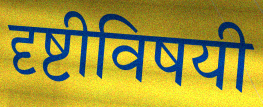
दृष्टीविषयी